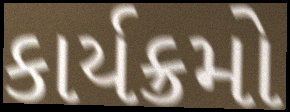
કાર્યક્રમો